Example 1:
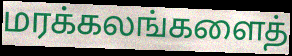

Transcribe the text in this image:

மரக்கலங்களைத்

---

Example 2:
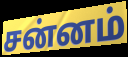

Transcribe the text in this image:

சன்னம்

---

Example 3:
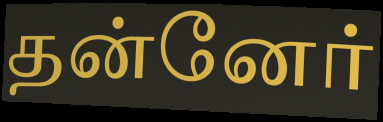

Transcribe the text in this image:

தன்னேர்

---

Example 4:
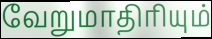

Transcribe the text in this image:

வேறுமாதிரியும்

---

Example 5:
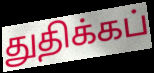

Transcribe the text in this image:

துதிக்கப்